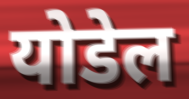
योडेल